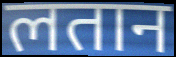
लतान